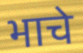
भाचे